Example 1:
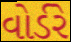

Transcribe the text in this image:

વોર્ડરે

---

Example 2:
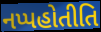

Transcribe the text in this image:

નપ્પહોતીતિ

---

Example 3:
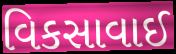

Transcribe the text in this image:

વિકસાવાઈ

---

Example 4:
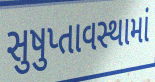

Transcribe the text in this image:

સુષુપ્તાવસ્થામાં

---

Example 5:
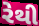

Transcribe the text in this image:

રેથી